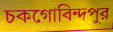
চকগোবিন্দপুর